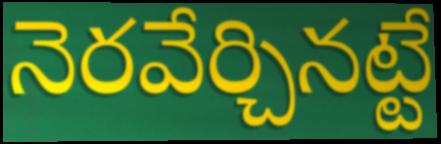
నెరవేర్చినట్టే